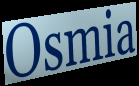
Osmia